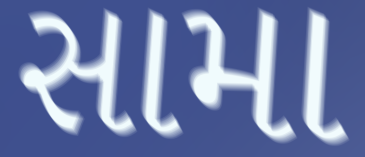
સામા